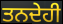
ਤਨਦੇਹੀ